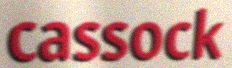
cassock